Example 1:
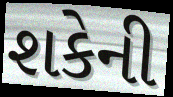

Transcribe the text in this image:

શકેની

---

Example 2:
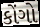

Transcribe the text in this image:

કોંગો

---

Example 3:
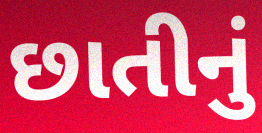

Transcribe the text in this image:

છાતીનું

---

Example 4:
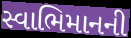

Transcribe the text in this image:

સ્વાભિમાનની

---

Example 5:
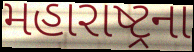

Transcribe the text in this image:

મહારાષ્ટ્રના